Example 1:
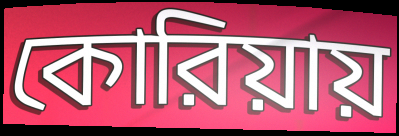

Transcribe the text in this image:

কোরিয়ায়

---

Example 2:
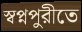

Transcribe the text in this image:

স্বপ্নপুরীতে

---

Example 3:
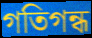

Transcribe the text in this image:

গতিগন্ধ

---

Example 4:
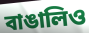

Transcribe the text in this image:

বাঙালিও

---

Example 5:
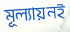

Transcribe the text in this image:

মূল্যায়নই